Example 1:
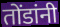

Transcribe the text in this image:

तोंडांनी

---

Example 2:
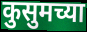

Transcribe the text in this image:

कुसुमच्या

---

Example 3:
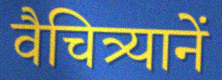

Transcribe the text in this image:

वैचित्र्यानें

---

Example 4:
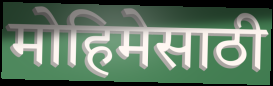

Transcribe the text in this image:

मोहिमेसाठी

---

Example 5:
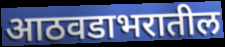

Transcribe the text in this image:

आठवडाभरातील